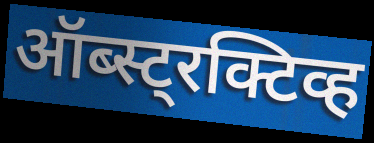
ऑब्स्ट्रक्टिव्ह